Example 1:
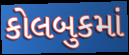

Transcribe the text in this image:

કોલબુકમાં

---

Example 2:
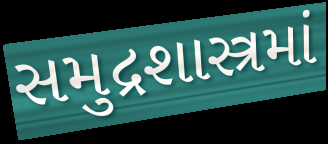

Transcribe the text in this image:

સમુદ્રશાસ્ત્રમાં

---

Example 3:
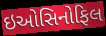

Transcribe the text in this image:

ઇઓસિનોફિલ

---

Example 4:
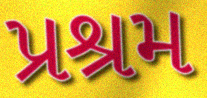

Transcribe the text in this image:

પ્રશ્રમ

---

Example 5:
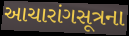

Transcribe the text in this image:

આચારાંગસૂત્રના